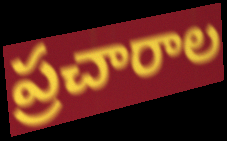
ప్రచారాల